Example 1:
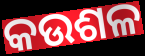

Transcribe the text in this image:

କଉଶଳ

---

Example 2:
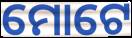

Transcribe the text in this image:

ମୋଟେ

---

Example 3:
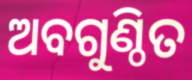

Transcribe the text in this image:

ଅବଗୁଣ୍ଠିତ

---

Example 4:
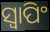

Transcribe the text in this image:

ସ୍ବାପିଂ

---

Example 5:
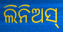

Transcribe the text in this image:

ଲିନିଅସ୍